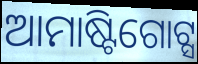
ଆମାଷ୍ଟିଗୋଟ୍ସ